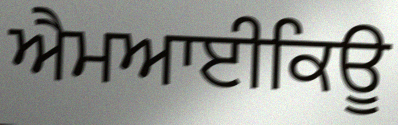
ਐਮਆਈਕਿਊ